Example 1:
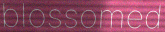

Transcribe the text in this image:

blossomed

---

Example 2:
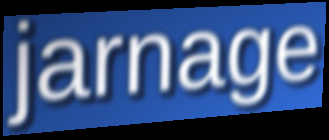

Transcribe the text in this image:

jarnage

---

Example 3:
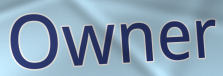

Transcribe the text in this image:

Owner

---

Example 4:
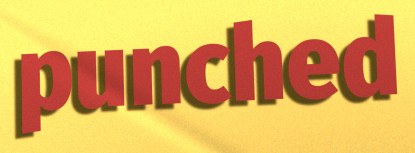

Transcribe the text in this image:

punched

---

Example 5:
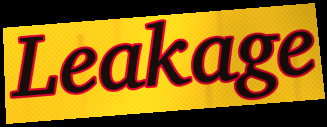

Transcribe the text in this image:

Leakage